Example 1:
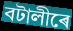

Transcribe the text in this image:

বটালীৰে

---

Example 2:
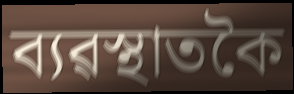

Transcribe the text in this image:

ব্যৱস্থাতকৈ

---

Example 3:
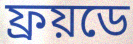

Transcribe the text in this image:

ফ্ৰয়ডে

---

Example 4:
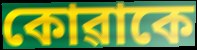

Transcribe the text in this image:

কোৱাকে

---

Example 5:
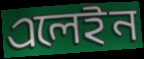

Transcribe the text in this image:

এলেইন